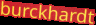
burckhardt